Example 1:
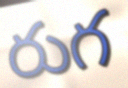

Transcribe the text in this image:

రుగ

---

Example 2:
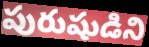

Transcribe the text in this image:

పురుషుడిని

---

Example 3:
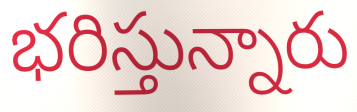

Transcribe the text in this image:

భరిస్తున్నారు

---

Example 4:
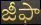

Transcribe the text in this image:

జీఫా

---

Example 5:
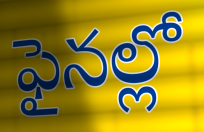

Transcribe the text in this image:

ఫైనల్లో